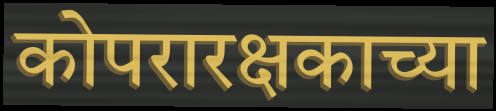
कोपरारक्षकाच्या